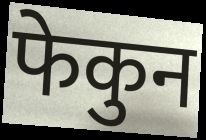
फेकुन